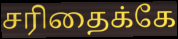
சரிதைக்கே